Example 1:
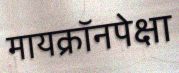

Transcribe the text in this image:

मायक्रॉनपेक्षा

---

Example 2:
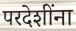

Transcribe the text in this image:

परदेशींना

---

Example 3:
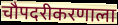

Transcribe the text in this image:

चौपदरीकरणाला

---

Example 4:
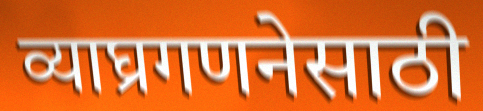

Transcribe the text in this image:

व्याघ्रगणनेसाठी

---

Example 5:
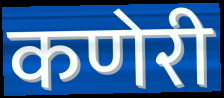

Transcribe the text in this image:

कणेरी